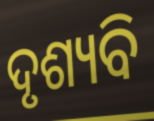
ଦୃଶ୍ୟବି